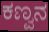
ಕಣ್ವನ